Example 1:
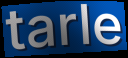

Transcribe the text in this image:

tarle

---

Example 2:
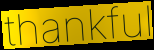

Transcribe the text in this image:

thankful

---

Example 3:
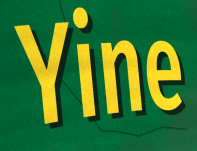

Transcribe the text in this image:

Yine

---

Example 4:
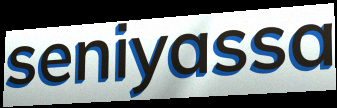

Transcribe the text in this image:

seniyassa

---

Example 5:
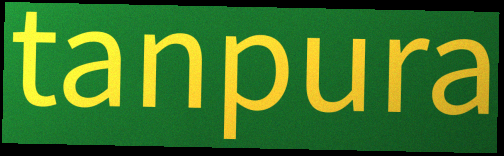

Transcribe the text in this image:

tanpura